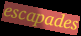
escapades